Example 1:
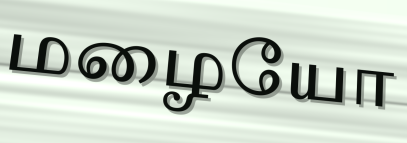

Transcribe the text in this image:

மழையோ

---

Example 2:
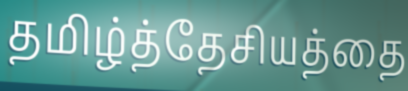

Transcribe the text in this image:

தமிழ்த்தேசியத்தை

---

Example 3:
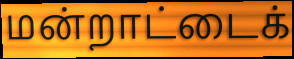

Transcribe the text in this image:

மன்றாட்டைக்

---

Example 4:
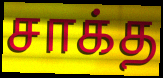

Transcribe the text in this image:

சாக்த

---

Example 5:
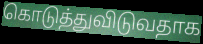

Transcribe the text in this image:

கொடுத்துவிடுவதாக